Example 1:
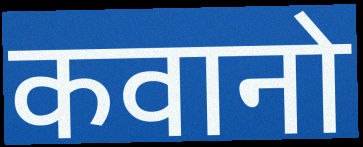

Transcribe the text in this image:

कवानो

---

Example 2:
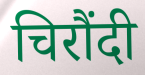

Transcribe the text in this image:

चिरौंदी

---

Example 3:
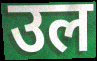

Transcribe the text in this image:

उल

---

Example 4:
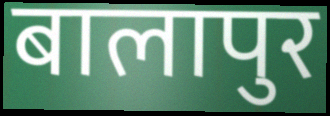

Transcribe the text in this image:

बालापुर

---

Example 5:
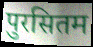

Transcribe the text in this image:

पुरसितम